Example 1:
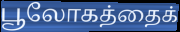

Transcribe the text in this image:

பூலோகத்தைக்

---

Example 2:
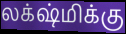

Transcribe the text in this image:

லக்‌ஷ்மிக்கு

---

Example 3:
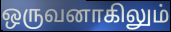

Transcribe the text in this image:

ஒருவனாகிலும்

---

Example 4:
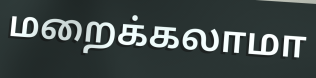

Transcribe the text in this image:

மறைக்கலாமா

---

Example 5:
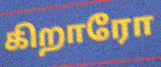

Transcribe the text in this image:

கிறாரோ